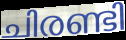
ചിരണ്ടി